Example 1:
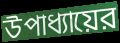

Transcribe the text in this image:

উপাধ্যায়ের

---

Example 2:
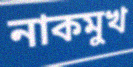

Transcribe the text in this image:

নাকমুখ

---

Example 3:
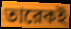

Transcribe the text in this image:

তারেকই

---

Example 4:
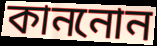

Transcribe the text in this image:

কাননোন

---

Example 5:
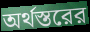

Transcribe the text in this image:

অর্থস্তরের